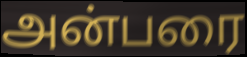
அன்பரை